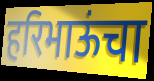
हरिभाऊंचा